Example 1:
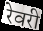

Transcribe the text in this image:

रेवरी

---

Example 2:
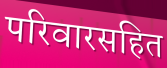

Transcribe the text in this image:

परिवारसहित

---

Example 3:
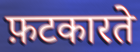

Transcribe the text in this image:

फ़टकारते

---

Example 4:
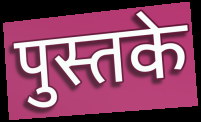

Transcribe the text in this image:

पुस्तके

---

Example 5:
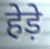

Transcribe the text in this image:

हेड़े